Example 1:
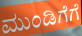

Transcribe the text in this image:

ಮುಂಡಿಗೆಗೆ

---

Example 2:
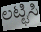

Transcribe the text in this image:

ಲಟ್ಟಿಸಿ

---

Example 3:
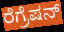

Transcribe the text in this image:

ರೆಗ್ರೆಷನ್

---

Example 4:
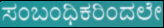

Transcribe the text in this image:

ಸಂಬಂಧಿಕರಿಂದಲೇ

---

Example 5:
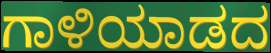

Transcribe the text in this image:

ಗಾಳಿಯಾಡದ